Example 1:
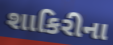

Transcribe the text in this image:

શાકિરીના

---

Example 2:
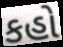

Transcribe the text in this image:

કહો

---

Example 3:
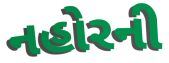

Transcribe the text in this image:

નહોરની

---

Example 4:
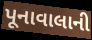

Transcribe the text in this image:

પૂનાવાલાની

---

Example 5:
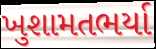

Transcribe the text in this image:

ખુશામતભર્યા